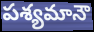
పశ్యమానౌ